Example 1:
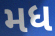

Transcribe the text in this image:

મધ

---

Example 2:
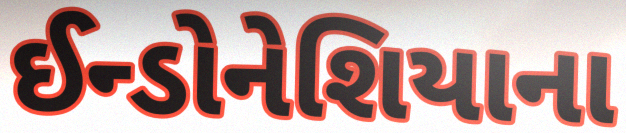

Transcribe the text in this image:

ઈન્ડોનેશિયાના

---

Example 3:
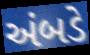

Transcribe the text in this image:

અંબડે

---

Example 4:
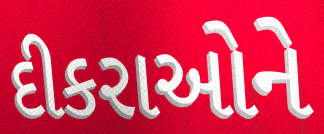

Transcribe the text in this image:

દીકરાઓને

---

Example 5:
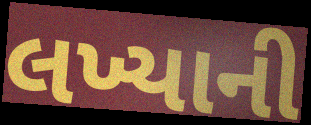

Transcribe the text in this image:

લખ્યાની